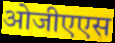
ओजीएएस